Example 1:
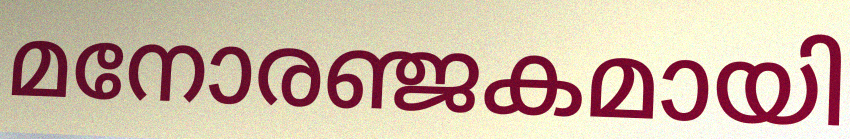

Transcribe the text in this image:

മനോരഞ്ജകമായി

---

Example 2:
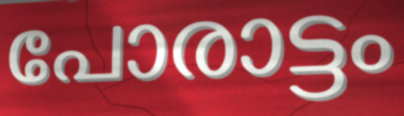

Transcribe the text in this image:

പോരാട്ടം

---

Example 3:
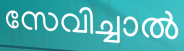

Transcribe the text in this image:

സേവിച്ചാൽ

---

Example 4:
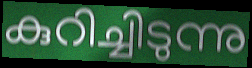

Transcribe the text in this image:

കുറിച്ചിടുന്നു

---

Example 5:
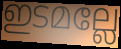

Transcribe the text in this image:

ഇടമല്ലേ